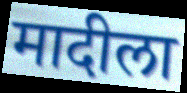
मादीला